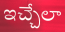
ఇచ్చేలా